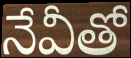
నేవీతో